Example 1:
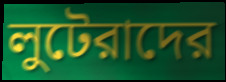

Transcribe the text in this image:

লুটেরাদের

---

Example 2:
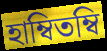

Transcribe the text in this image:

হাম্বিতম্বি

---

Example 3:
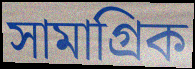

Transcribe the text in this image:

সামাগ্রিক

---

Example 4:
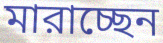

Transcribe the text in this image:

মারাচ্ছেন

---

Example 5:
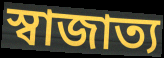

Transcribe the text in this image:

স্বাজাত্য